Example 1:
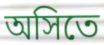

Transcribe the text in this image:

অসিতে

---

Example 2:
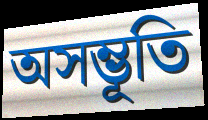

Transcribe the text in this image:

অসম্ভূতি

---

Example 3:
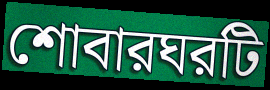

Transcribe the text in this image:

শোবারঘরটি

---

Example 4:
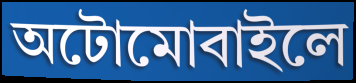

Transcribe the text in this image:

অটোমোবাইলে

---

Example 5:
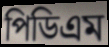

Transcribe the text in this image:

পিডিএম